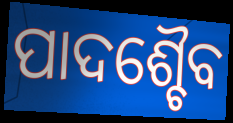
ପାଦଶ୍ଚୈବ